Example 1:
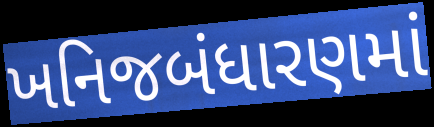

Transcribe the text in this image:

ખનિજબંધારણમાં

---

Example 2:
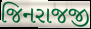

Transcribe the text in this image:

જિનરાજજી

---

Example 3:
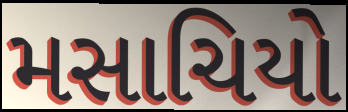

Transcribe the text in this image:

મસાચિયો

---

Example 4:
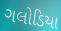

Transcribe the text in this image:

ગલોડિયા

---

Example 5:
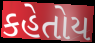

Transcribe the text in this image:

કહેતોય